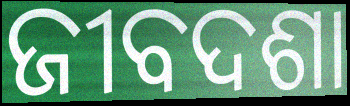
ଜୀବଦଶା